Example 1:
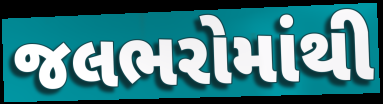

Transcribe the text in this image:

જલભરોમાંથી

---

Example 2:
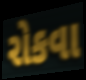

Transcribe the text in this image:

રોકવા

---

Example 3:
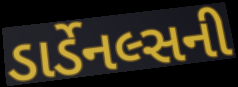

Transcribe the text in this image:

ડાર્ડેનલ્સની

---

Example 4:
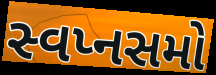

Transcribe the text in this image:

સ્વપ્નસમો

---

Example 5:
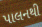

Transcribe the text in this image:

પાલનથી